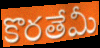
కొరతేమీ